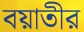
বয়াতীর